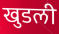
खुडली